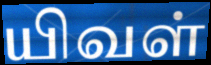
யிவள்